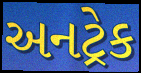
અનટ્રેક